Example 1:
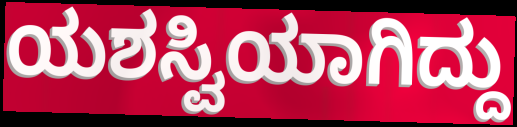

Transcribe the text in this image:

ಯಶಸ್ವಿಯಾಗಿದ್ದು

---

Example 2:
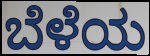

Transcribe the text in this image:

ಬೆಳೆಯ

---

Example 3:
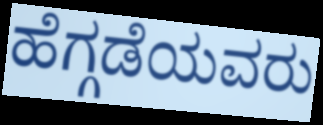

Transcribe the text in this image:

ಹೆಗ್ಗಡೆಯವರು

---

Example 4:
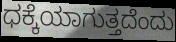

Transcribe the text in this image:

ಧಕ್ಕೆಯಾಗುತ್ತದೆಂದು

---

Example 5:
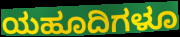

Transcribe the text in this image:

ಯಹೂದಿಗಳೂ